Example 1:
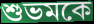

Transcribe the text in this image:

শুভমকে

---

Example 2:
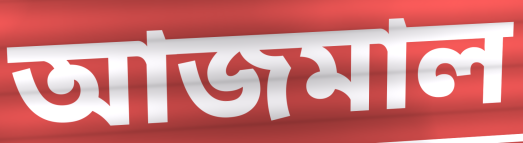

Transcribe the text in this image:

আজমাল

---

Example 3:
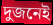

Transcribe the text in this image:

দুজনেই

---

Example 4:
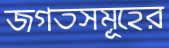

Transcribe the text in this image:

জগতসমূহের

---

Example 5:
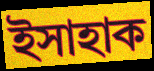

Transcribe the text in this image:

ইসাহাক